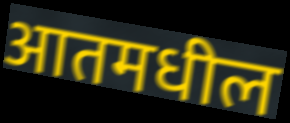
आतमधील